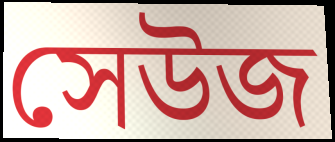
সেউজ